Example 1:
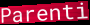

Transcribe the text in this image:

Parenti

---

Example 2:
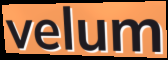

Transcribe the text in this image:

velum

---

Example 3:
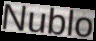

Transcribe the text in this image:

Nublo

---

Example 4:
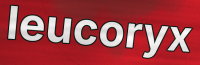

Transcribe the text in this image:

leucoryx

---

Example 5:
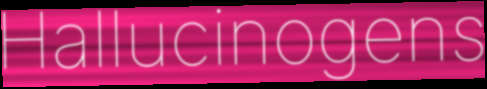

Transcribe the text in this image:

Hallucinogens